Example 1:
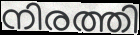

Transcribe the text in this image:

നിരത്തി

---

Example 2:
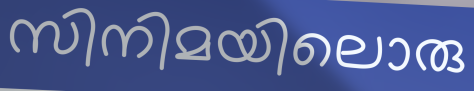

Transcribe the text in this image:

സിനിമയിലൊരു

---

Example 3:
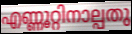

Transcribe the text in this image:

എണ്ണൂറ്റിനാല്പതു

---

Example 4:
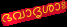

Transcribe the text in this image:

ഭവാദൃശാഃ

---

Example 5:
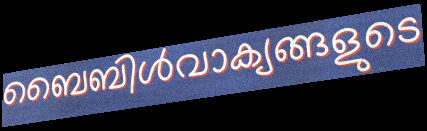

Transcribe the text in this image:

ബൈബിൾവാക്യങ്ങളുടെ